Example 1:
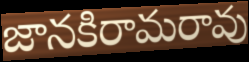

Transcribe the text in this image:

జానకిరామరావు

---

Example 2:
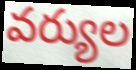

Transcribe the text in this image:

వర్యుల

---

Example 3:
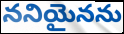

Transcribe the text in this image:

ననియైనను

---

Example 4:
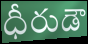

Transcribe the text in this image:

ధీరుడౌ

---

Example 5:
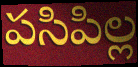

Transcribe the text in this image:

పసిపిల్ల